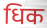
धिक